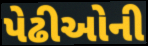
પેઢીઓની